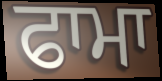
ਫਾਮਾ